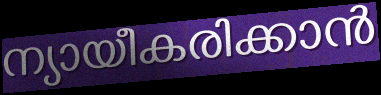
ന്യായീകരിക്കാൻ